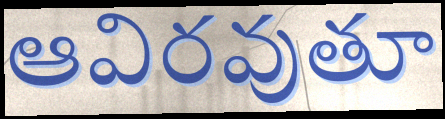
ఆవిరవుతూ